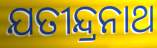
ଯତୀନ୍ଦ୍ରନାଥ